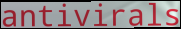
antivirals